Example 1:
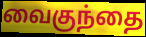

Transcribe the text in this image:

வைகுந்தை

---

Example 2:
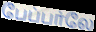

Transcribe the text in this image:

பேப்பர்லே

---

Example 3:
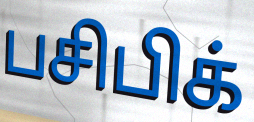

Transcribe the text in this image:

பசிபிக்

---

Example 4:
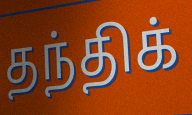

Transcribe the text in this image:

தந்திக்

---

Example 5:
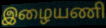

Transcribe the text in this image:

இழையணி